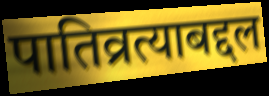
पातिव्रत्याबद्दल